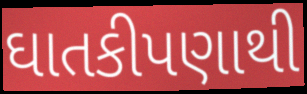
ઘાતકીપણાથી